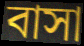
বাসা